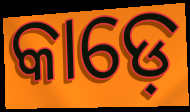
କାଡ଼େ